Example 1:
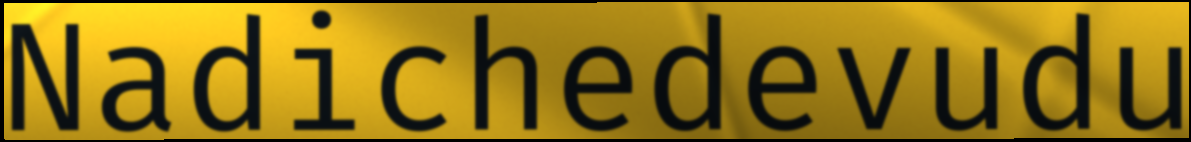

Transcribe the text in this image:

Nadichedevudu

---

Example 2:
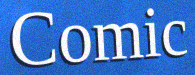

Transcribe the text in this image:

Comic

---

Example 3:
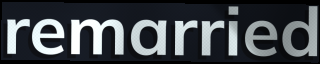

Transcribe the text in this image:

remarried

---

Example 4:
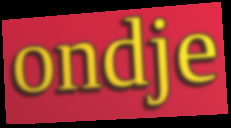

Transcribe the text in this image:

ondje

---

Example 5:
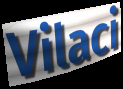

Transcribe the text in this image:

Vilaci